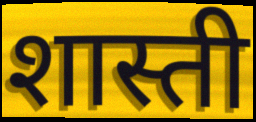
शास्ती